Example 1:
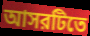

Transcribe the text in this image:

আসরটিতে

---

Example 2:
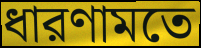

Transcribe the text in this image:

ধারণামতে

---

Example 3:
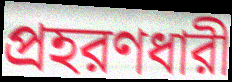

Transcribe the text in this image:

প্রহরণধারী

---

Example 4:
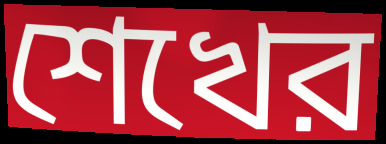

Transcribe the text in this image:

শেখের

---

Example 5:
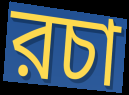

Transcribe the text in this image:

রচা